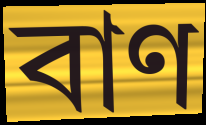
বাণ